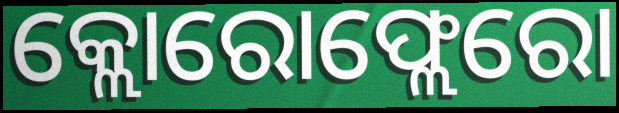
କ୍ଲୋରୋଫ୍ଲେରୋ